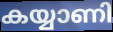
കയ്യാണി